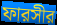
ফারসীর